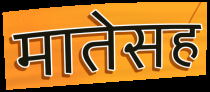
मातेसह